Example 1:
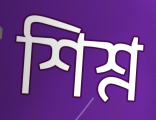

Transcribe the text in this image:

শিশ্ন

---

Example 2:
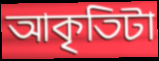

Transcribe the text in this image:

আকৃতিটা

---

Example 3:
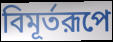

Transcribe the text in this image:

বিমূর্তরূপে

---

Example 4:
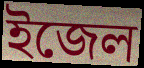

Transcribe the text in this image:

ইজেল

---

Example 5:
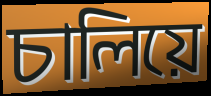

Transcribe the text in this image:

চালিয়ে